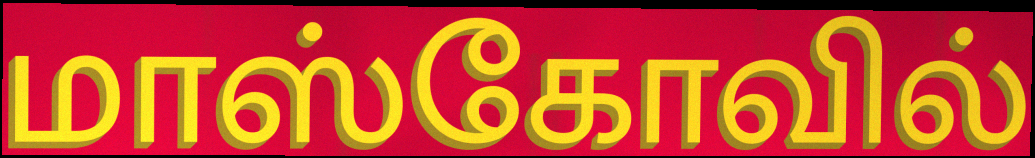
மாஸ்கோவில்